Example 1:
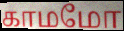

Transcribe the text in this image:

காமமோ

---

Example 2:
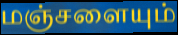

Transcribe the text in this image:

மஞ்சளையும்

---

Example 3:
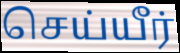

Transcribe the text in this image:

செய்யீர்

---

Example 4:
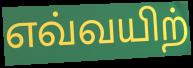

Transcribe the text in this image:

எவ்வயிற்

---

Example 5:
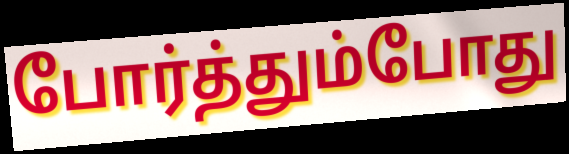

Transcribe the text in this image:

போர்த்தும்போது